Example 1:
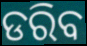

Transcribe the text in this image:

ଡରିବ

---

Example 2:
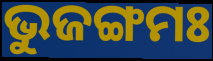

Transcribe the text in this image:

ଭୁଜଙ୍ଗମଃ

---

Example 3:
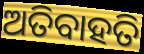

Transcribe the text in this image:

ଅତିବାହତି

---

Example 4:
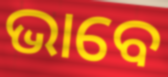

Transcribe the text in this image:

ଭାବେ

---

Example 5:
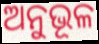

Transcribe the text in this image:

ଅନୁଭୂଳ